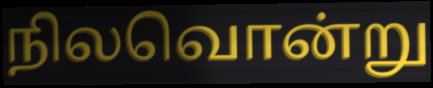
நிலவொன்று